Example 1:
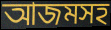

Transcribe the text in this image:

আজমসহ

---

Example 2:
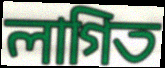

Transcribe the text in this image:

লাগিত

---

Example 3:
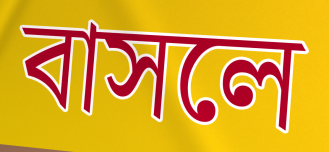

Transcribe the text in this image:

বাসলে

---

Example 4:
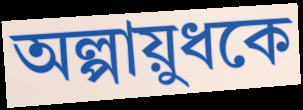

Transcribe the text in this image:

অল্পায়ুধকে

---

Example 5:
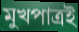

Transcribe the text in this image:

মুখপাত্রই